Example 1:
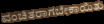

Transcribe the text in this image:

ವಂಚಿತರಾಗಬೇಕಾಯಿತು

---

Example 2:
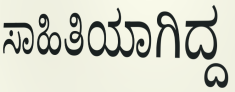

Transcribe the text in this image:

ಸಾಹಿತಿಯಾಗಿದ್ದ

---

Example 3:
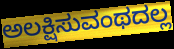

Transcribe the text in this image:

ಅಲಕ್ಷಿಸುವಂಥದಲ್ಲ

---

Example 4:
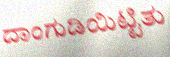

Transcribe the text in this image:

ದಾಂಗುಡಿಯಿಟ್ಟಿತು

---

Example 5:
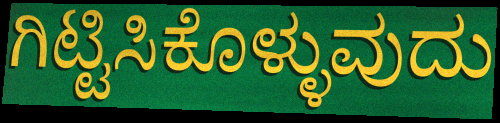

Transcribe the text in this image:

ಗಿಟ್ಟಿಸಿಕೊಳ್ಳುವುದು